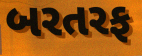
બરતરફ